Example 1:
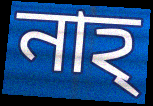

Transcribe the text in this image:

নাহ্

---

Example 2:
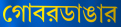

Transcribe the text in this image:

গোবরডাঙার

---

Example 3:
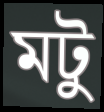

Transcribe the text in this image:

মটু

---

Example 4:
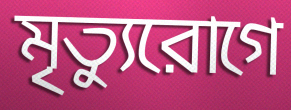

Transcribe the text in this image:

মৃত্যুরোগে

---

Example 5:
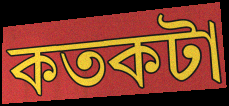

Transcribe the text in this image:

কতকটা